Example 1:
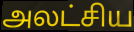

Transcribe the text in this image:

அலட்சிய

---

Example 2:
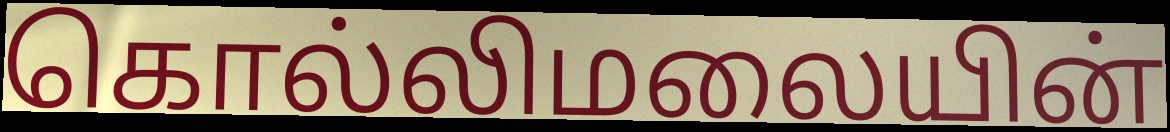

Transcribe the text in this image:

கொல்லிமலையின்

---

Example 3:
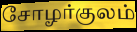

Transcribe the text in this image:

சோழர்குலம்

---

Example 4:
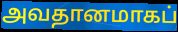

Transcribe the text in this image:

அவதானமாகப்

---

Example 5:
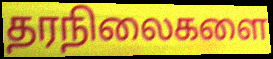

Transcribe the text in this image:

தரநிலைகளை